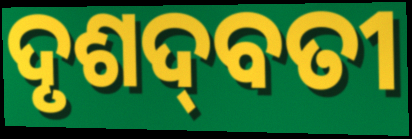
ଦୃଶଦ୍‌ବତୀ